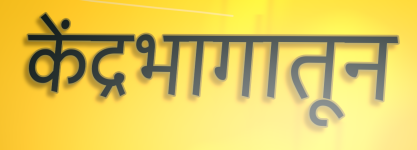
केंद्रभागातून